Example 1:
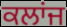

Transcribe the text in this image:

ਕਲਾਂਜ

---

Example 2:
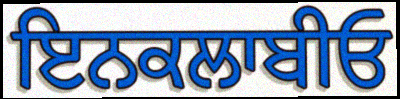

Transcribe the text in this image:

ਇਨਕਲਾਬੀਓ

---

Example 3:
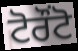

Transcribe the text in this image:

ਟੋਰੌੰਟੋ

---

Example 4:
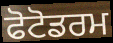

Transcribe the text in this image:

ਫੋਟੋਡਰਮ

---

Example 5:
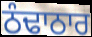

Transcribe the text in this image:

ਠੰਢਾਠਾਰ